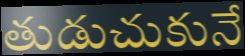
తుడుచుకునే